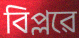
বিপ্লৱে